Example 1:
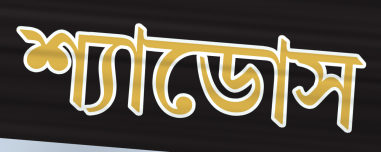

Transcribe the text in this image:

শ্যাডোস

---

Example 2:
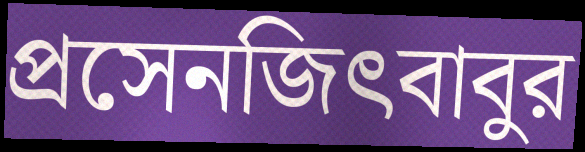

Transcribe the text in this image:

প্রসেনজিৎবাবুর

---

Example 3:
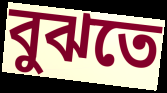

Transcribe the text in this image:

বুঝতে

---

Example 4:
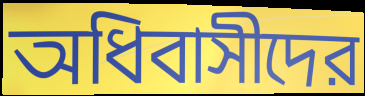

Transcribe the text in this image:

অধিবাসীদের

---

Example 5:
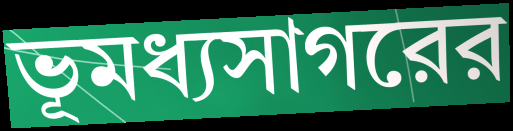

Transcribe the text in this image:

ভূমধ্যসাগরের